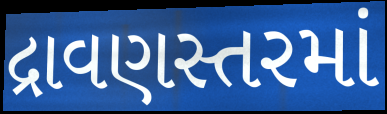
દ્રાવણસ્તરમાં